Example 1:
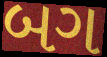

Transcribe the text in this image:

બગ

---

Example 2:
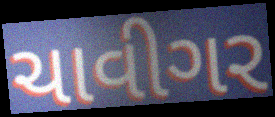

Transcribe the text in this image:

ચાવીગર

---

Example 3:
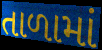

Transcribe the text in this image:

તાળામાં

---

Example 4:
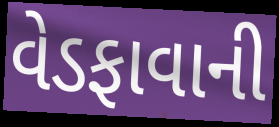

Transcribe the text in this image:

વેડફાવાની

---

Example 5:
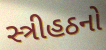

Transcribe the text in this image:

સ્ત્રીહઠનો